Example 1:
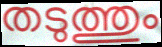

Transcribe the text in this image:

തടുത്തും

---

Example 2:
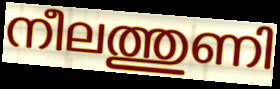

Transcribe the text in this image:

നീലത്തുണി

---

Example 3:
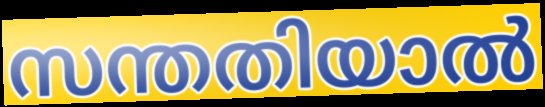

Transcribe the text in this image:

സന്തതിയാൽ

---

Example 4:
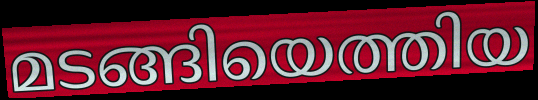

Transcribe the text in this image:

മടങ്ങിയെത്തിയ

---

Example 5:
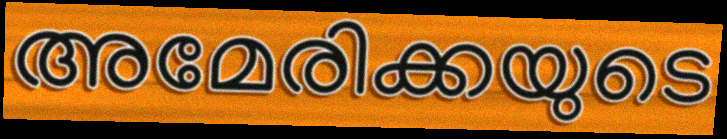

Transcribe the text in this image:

അമേരിക്കയുടെ